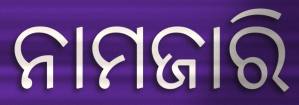
ନାମଜାରି